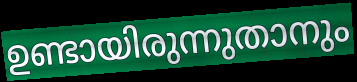
ഉണ്ടായിരുന്നുതാനും